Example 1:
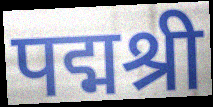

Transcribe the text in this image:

पद्मश्री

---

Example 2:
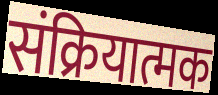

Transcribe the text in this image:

संक्रियात्मक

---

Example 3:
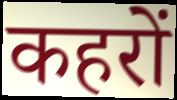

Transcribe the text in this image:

कहरों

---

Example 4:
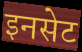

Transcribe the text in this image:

इनसेट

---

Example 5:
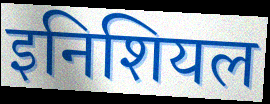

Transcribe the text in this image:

इनिशियल